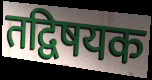
तद्विषयक